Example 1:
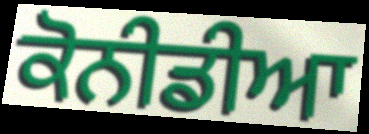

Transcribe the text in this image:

ਕੋਨੀਡੀਆ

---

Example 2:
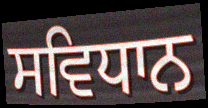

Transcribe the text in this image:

ਸਵਿਧਾਨ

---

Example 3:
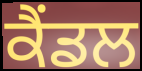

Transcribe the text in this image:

ਕੈਂਡਲ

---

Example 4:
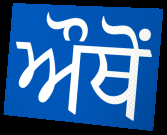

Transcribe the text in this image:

ਔਥੋਂ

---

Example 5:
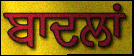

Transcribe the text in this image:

ਬਾਦਲਾਂ